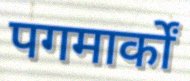
पगमार्कों